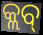
କ୍ଲବ୍